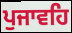
ਪੁਜਾਵਹਿ